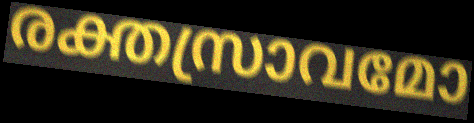
രക്തസ്രാവമോ